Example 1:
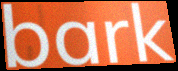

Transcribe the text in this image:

bark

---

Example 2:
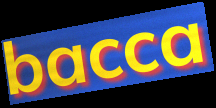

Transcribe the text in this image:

bacca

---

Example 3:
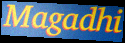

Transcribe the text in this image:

Magadhi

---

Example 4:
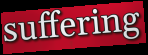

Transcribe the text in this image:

suffering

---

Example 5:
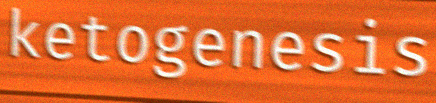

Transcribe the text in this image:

ketogenesis